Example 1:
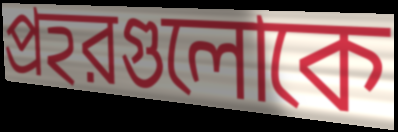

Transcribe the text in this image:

প্রহরগুলোকে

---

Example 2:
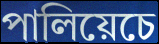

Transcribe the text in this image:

পালিয়েচে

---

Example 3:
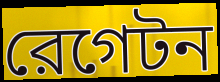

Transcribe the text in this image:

রেগেটন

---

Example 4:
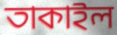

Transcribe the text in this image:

তাকাইল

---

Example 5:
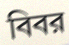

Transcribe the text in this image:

বিবর